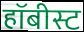
हॉबीस्ट